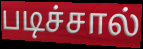
படிச்சால்